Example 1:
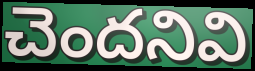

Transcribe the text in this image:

చెందనివి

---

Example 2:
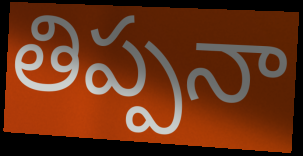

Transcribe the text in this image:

తిప్పనా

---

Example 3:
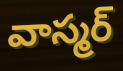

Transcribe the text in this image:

వాస్మర్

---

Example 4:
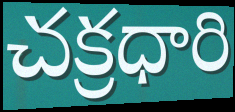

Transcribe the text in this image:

చక్రధారి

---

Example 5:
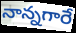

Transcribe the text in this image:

నాన్నగారే